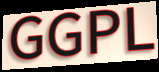
GGPL